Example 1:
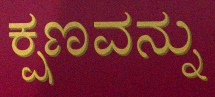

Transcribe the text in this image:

ಕ್ಷಣವನ್ನು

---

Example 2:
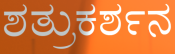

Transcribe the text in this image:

ಶತ್ರುಕರ್ಶನ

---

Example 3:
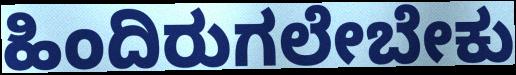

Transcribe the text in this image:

ಹಿಂದಿರುಗಲೇಬೇಕು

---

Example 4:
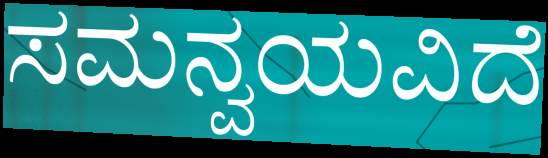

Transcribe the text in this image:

ಸಮನ್ವಯವಿದೆ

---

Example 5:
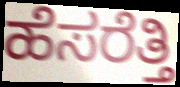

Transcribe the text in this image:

ಹೆಸರೆತ್ತಿ